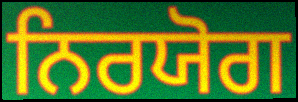
ਨਿਰਯੋਗ